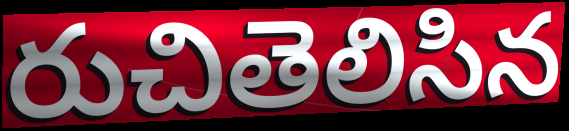
రుచితెలిసిన